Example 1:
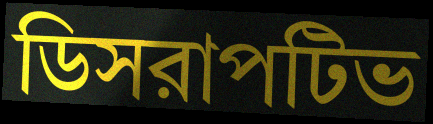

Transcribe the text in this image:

ডিসরাপটিভ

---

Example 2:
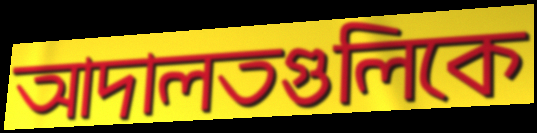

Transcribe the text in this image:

আদালতগুলিকে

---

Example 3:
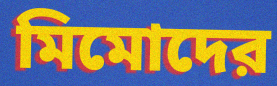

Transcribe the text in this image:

মিমোদের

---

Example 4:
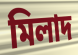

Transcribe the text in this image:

মিলাদ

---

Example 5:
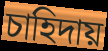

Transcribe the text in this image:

চাহিদায়